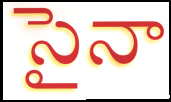
సైనా